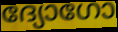
ദ്യോഗോ